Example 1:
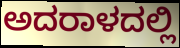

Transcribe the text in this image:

ಅದರಾಳದಲ್ಲಿ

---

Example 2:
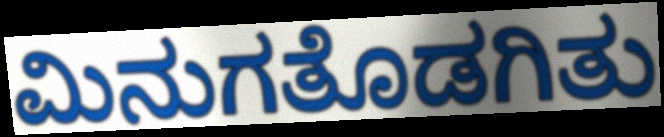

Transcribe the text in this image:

ಮಿನುಗತೊಡಗಿತು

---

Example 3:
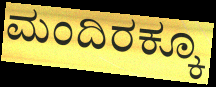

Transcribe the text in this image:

ಮಂದಿರಕ್ಕೂ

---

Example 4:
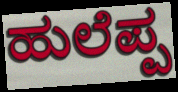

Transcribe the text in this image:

ಹುಲೆಪ್ಪ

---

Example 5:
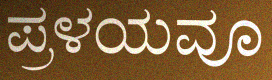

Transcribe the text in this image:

ಪ್ರಳಯವೂ